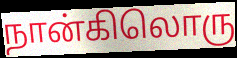
நான்கிலொரு